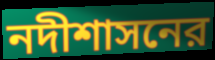
নদীশাসনের